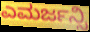
ಎಮರ್ಜನ್ಸಿ